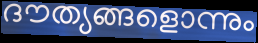
ദൗത്യങ്ങളൊന്നും